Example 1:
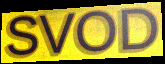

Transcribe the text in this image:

SVOD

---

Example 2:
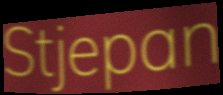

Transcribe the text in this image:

Stjepan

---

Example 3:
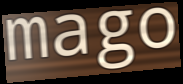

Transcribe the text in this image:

mago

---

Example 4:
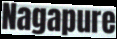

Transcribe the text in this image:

Nagapure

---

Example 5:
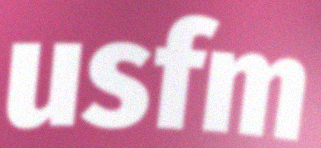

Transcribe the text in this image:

usfm